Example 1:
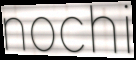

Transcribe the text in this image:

nochi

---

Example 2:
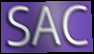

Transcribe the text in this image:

SAC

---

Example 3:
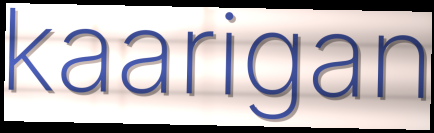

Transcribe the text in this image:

kaarigan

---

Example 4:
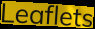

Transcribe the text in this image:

Leaflets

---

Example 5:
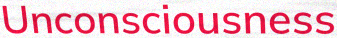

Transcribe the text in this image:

Unconsciousness